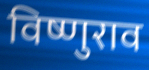
विष्णुराव